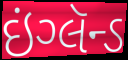
ઇંગ્લૅન્ડ